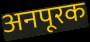
अनपूरक